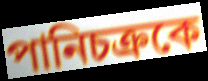
পানিচক্রকে